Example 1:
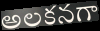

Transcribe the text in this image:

అలకనగా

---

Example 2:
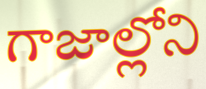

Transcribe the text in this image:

గాజాల్లోని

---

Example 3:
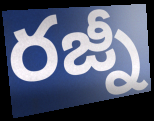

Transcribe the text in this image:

రజ్నీ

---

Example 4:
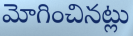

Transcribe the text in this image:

మోగించినట్లు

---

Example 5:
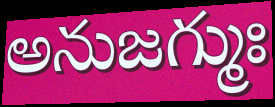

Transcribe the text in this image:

అనుజగ్ముః